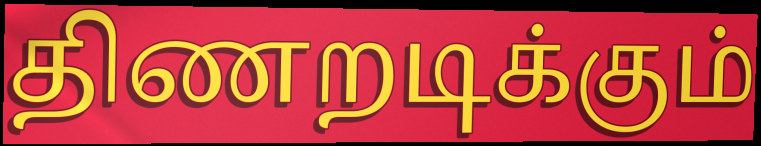
திணறடிக்கும்